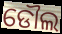
ଡୌଲ